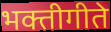
भक्तीगीते